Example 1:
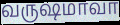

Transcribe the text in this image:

வருஷமாவா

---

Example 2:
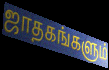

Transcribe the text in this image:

ஜாதகங்களும்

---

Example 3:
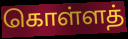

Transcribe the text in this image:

கொள்ளத்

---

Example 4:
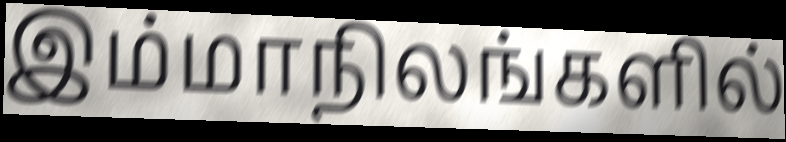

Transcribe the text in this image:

இம்மாநிலங்களில்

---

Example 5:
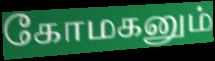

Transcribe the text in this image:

கோமகனும்